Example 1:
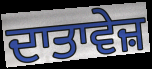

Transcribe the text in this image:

ਦਾਤਾਵੇਜ਼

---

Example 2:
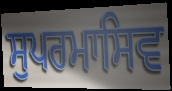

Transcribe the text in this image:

ਸੁਪਰਮਾਸਿਵ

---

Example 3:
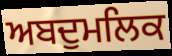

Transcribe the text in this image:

ਅਬਦੁਮਲਿਕ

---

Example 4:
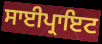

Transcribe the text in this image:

ਸਾਈਪ੍ਰਾਇਟ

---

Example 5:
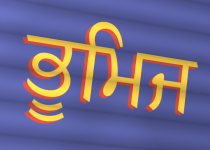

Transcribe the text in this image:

ਭੂਮਿਜ